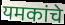
यमकांचे